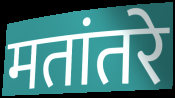
मतांतरे